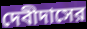
দেবীদাসের